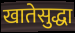
खातेसुद्धा